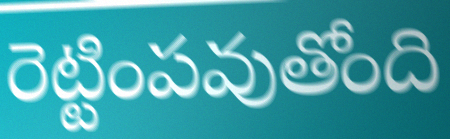
రెట్టింపవుతోంది